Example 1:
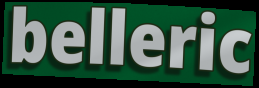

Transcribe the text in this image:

belleric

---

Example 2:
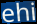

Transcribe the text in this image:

ehi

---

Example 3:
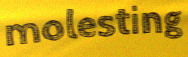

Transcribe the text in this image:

molesting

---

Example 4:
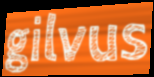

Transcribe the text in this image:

gilvus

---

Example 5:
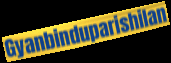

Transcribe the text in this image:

Gyanbinduparishilan